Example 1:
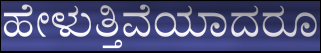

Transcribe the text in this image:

ಹೇಳುತ್ತಿವೆಯಾದರೂ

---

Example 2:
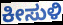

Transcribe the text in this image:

ಕೀಸುಳಿ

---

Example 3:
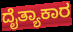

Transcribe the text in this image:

ದೈತ್ಯಾಕಾರ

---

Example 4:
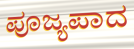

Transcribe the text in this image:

ಪೂಜ್ಯಪಾದ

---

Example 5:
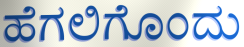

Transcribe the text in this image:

ಹೆಗಲಿಗೊಂದು